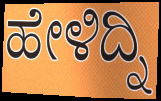
ಹೇಳಿದ್ನಿ